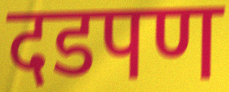
दडपण